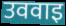
उववाइ